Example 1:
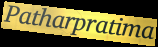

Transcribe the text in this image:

Patharpratima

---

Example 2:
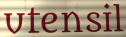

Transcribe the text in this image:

utensil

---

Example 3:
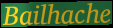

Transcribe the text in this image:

Bailhache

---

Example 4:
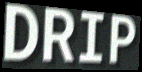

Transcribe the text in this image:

DRIP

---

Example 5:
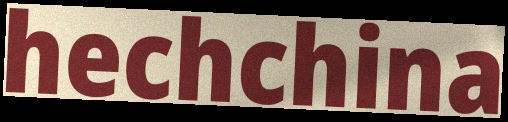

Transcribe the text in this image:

hechchina